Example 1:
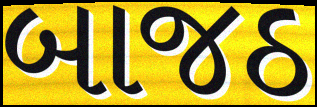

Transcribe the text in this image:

બાજઠ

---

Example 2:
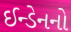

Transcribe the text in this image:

ઈન્ડેનનો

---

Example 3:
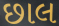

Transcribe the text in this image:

છાલ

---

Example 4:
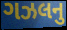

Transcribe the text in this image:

ગઝલનુ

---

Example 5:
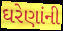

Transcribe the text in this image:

ઘરેણાંની